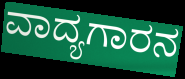
ವಾದ್ಯಗಾರನ